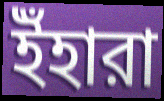
ইঁহারা